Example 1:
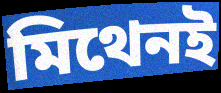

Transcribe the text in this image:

মিথেনই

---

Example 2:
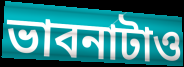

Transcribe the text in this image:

ভাবনাটাও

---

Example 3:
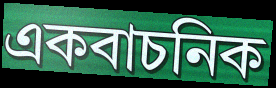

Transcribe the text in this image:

একবাচনিক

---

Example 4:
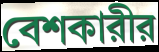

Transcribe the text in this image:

বেশকারীর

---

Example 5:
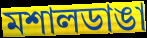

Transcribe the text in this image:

মশালডাঙা